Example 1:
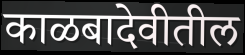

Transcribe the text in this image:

काळबादेवीतील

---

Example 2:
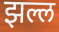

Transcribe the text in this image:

झल्ल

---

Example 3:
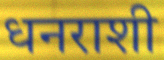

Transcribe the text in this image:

धनराशी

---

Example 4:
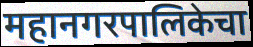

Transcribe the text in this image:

महानगरपालिकेचा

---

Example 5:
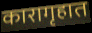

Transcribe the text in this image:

कारागृहात